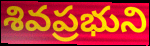
శివప్రభుని